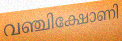
വഞ്ചിക്ഷോണി